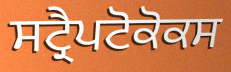
ਸਟ੍ਰੈਪਟੋਕੋਕਸ